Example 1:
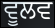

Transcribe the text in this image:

ਵੂਲਵ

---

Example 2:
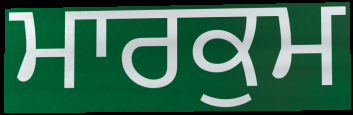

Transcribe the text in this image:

ਮਾਰਕੁਮ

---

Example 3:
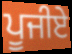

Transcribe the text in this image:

ਪੂਜੀਏ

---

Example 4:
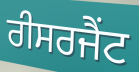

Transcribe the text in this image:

ਰੀਸਰਜੈਂਟ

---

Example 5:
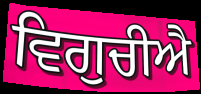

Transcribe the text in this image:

ਵਿਗੁਚੀਐ